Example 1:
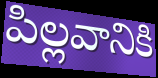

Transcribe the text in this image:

పిల్లవానికి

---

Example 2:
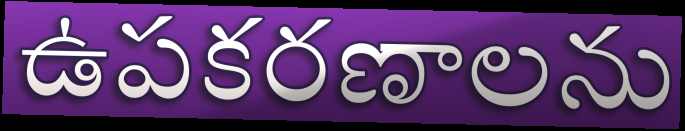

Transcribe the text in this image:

ఉపకరణాలను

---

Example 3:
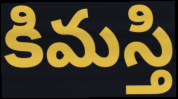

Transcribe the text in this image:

కిమస్తి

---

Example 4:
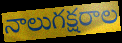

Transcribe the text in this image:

నాలుగక్షరాల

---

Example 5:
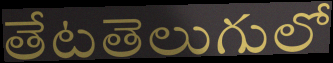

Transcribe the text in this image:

తేటతెలుగులో